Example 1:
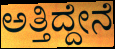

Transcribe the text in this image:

ಅತ್ತಿದ್ದೇನೆ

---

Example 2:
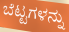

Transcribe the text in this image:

ಬೆಟ್ಟಗಳನ್ನು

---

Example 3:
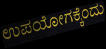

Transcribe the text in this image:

ಉಪಯೋಗಕ್ಕೆಂದು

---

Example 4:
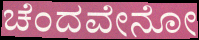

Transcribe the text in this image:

ಚೆಂದವೇನೋ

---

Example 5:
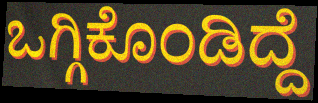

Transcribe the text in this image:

ಒಗ್ಗಿಕೊಂಡಿದ್ದೆ